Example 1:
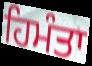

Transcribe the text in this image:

ਹਿਮੰਤਾ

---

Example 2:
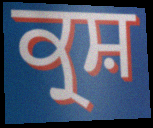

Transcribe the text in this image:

ਕ੍ਰਸ਼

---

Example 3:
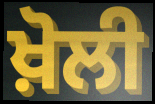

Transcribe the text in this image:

ਖ਼ੋਲੀ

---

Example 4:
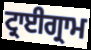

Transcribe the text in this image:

ਟ੍ਰਾਈਗ੍ਰਾਮ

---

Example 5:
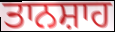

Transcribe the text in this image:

ਤਾਨਸ਼ਾਹ